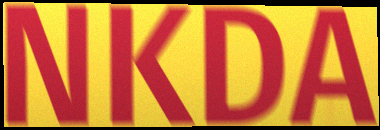
NKDA